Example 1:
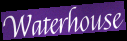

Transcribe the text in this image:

Waterhouse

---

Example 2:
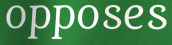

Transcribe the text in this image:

opposes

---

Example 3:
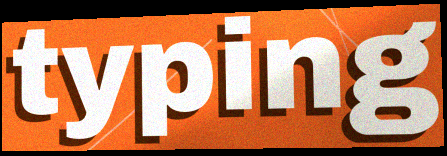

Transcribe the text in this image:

typing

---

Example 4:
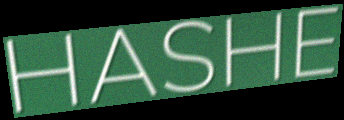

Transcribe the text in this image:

HASHE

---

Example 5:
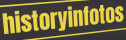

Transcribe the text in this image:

historyinfotos